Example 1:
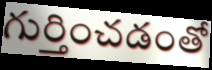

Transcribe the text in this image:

గుర్తించడంతో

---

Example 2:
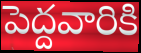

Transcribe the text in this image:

పెద్దవారికి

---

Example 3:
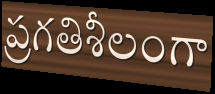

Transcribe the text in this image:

ప్రగతిశీలంగా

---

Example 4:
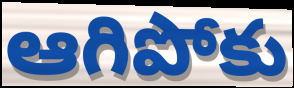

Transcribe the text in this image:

ఆగిపోకు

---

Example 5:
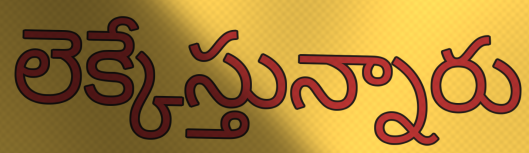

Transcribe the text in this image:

లెక్కేస్తున్నారు